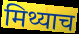
मिथ्याच